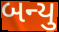
બન્યુ